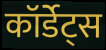
कॉर्डेट्स